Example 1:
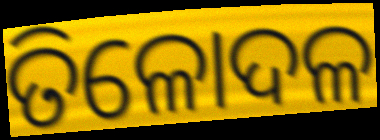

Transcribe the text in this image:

ତିଳୋଦଳ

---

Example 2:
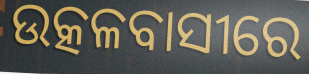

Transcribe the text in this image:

ଉତ୍କଳବାସୀରେ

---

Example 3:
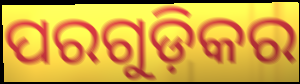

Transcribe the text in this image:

ପରଗୁଡ଼ିକର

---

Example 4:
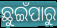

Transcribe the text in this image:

ଛୁଇଁପାରୁ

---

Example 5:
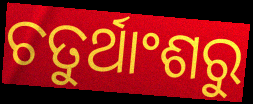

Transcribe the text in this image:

ଚତୁର୍ଥାଂଶରୁ